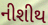
નીશીથ